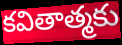
కవితాత్మకు